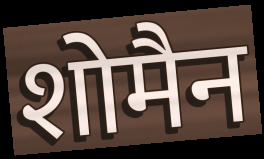
शोमैन